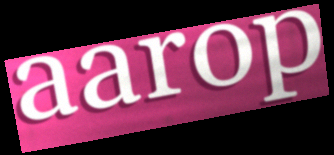
aarop